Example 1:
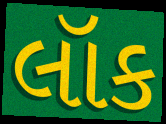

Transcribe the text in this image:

લૉક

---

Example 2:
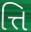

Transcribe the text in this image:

ત્તિ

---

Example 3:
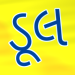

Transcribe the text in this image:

ડૂલ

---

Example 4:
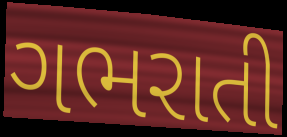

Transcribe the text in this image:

ગભરાતી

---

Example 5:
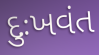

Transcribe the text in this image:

દુઃખવંત